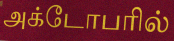
அக்டோபரில்